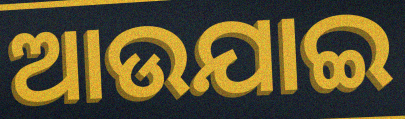
ଆଉଯାଇ